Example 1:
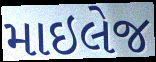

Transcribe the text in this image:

માઇલેજ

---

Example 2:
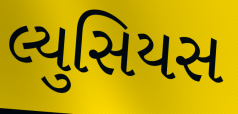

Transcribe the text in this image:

લ્યુસિયસ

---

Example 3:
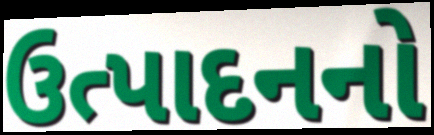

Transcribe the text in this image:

ઉત્પાદનનો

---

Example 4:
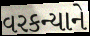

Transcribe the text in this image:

વરકન્યાને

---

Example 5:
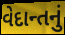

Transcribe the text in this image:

વેદાન્તનું